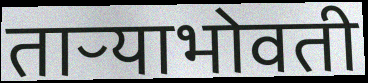
ताऱ्याभोवती